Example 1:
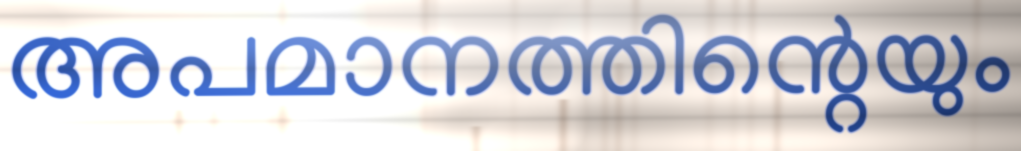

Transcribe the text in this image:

അപമാനത്തിന്റെയും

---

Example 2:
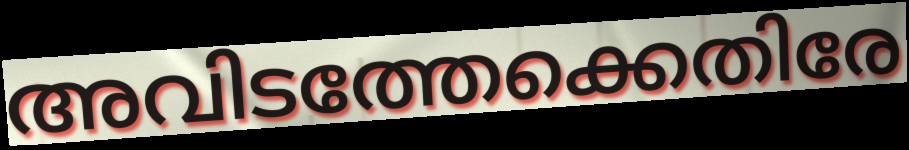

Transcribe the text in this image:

അവിടത്തേക്കെതിരേ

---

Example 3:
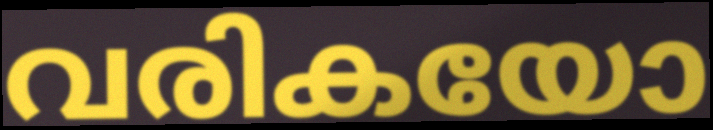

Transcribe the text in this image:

വരികയോ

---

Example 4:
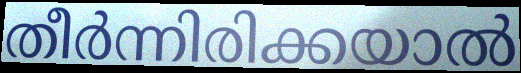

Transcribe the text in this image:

തീർന്നിരിക്കയാൽ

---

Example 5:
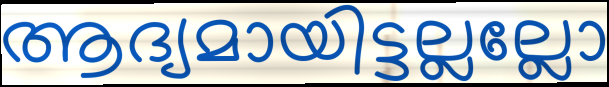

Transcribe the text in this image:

ആദ്യമായിട്ടല്ലല്ലോ